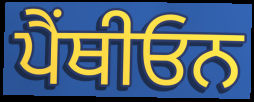
ਪੈਂਥੀਓਨ